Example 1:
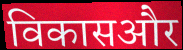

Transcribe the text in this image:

विकासऔर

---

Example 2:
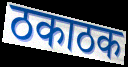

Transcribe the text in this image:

ठकाठक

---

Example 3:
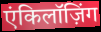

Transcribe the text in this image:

एंकिलॉज़िंग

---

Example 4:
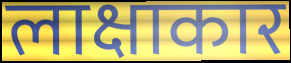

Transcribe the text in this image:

लाक्षाकार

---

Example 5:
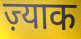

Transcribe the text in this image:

ज़्याक